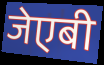
जेएबी